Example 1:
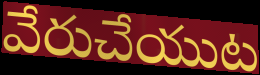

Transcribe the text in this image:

వేరుచేయుట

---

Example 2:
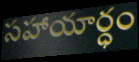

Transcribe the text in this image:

సహాయార్ధం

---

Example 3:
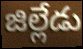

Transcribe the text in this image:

జిల్లేడు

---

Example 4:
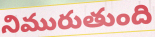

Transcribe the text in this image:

నిమురుతుంది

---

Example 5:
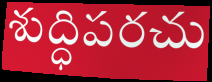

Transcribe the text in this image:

శుద్ధిపరచు